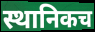
स्थानिकच